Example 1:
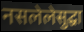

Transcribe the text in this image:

नसलेलेसुद्धा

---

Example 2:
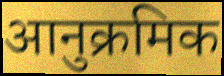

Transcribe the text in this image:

आनुक्रमिक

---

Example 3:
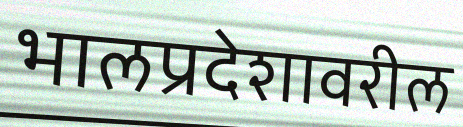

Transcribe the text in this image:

भालप्रदेशावरील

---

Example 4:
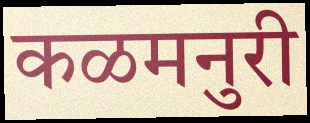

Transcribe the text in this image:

कळमनुरी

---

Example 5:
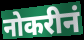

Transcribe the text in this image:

नोकरीनं